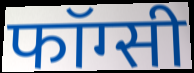
फॉग्सी